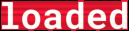
loaded